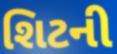
શિટની